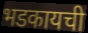
भडकायची